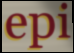
epi